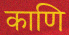
काणि